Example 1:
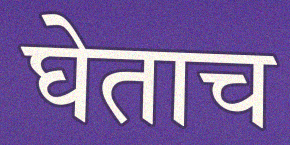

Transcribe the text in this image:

घेताच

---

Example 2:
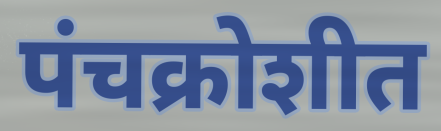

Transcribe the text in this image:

पंचक्रोशीत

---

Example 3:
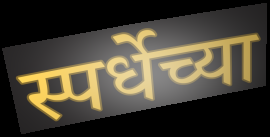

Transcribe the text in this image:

स्पर्धेच्या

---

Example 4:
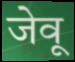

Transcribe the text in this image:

जेवू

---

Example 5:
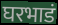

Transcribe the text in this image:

घरभाडं